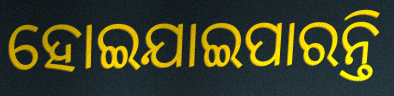
ହୋଇଯାଇପାରନ୍ତି